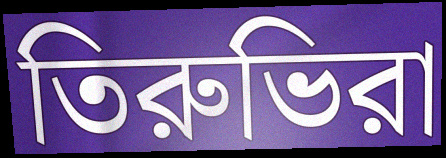
তিরুভিরা